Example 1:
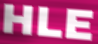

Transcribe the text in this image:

HLE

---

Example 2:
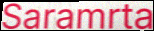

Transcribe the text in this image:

Saramrta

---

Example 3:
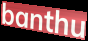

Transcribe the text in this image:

banthu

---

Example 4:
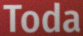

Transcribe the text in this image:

Toda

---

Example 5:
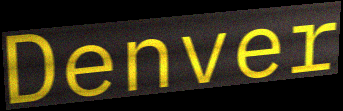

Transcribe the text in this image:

Denver